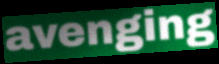
avenging